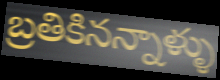
బ్రతికినన్నాళ్ళు